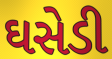
ઘસેડી